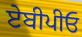
ਏਬੀਪੀਓ